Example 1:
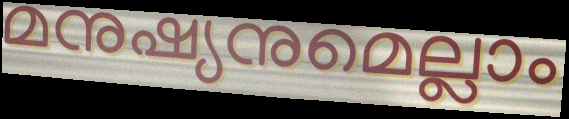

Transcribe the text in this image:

മനുഷ്യനുമെല്ലാം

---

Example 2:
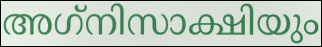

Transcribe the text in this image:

അഗ്‌നിസാക്ഷിയും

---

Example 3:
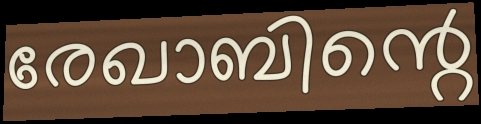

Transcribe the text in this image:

രേഖാബിന്റെ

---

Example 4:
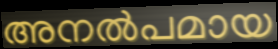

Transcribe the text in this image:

അനൽപമായ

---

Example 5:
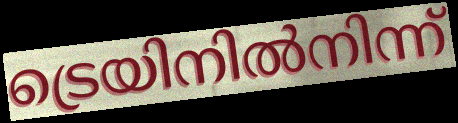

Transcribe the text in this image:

ട്രെയിനിൽനിന്ന്